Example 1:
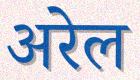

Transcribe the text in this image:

अरेल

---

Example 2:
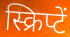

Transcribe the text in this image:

स्क्रिप्टें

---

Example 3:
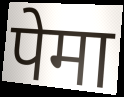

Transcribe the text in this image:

पेमा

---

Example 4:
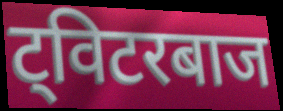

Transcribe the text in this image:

ट्विटरबाज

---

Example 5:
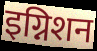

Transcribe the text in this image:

इग्निशन